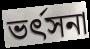
ভৰ্ৎসনা